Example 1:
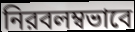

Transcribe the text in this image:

নিরবলম্বভাবে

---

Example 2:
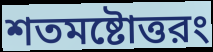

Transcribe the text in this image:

শতমষ্টোত্তরং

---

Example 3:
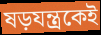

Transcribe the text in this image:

ষড়যন্ত্রকেই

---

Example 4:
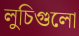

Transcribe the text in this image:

লুচিগুলো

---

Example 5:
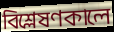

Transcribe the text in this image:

বিশ্লেষণকালে